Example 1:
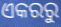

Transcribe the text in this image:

ଏକରରୁ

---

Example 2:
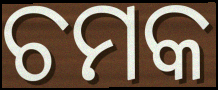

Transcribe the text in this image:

ଚମକ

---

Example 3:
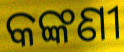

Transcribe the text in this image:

କଙ୍କଣୀ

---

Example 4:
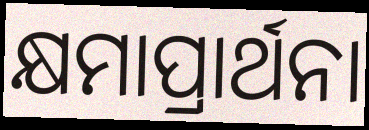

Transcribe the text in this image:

କ୍ଷମାପ୍ରାର୍ଥନା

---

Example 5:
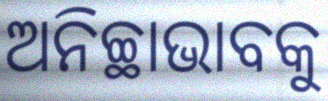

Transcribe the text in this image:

ଅନିଚ୍ଛାଭାବକୁ